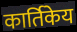
कार्तिकेय